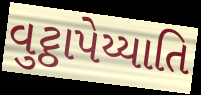
વુટ્ઠાપેય્યાતિ